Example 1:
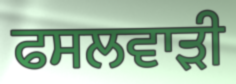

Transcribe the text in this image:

ਫਸਲਵਾੜੀ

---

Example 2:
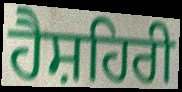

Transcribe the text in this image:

ਹੈਸ਼ਹਿਰੀ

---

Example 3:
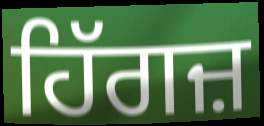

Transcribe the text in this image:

ਹਿੱਗਜ਼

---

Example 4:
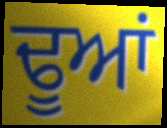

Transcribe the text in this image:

ਢੂਆਂ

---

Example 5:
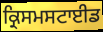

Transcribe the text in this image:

ਕ੍ਰਿਸਮਸਟਾਈਡ